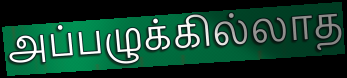
அப்பழுக்கில்லாத